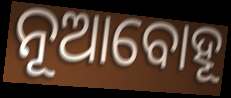
ନୂଆବୋହୂ